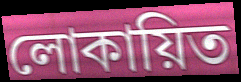
লোকায়িত